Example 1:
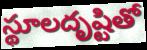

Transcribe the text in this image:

స్థూలదృష్టితో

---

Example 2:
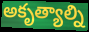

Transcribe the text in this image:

అకృత్యాల్ని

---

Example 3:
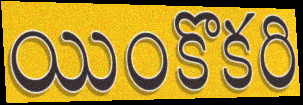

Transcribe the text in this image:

యింకొకరి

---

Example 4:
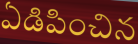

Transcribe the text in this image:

ఏడిపించిన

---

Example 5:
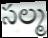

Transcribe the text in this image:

సల్మ